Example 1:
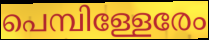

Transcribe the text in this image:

പെമ്പിള്ളേരേം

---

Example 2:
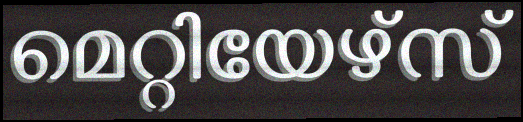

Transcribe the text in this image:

മെറ്റിയേഴ്സ്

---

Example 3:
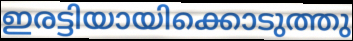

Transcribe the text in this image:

ഇരട്ടിയായിക്കൊടുത്തു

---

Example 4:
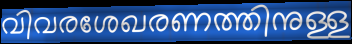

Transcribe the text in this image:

വിവരശേഖരണത്തിനുള്ള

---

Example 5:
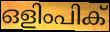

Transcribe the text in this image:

ഒളിംപിക്